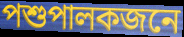
পশুপালকজনে